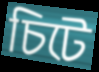
চিটে